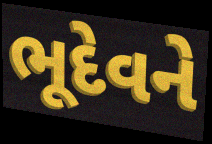
ભૂદેવને